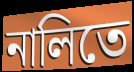
নালিতে